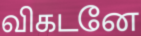
விகடனே